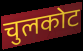
चुलकोट